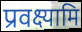
प्रवक्ष्यामि